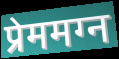
प्रेममग्न